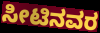
ಸೀಟಿನವರ